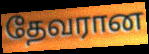
தேவரான